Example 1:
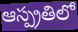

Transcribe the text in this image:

ఆస్ప్రతిలో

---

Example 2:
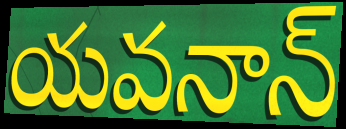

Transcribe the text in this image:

యవనాన్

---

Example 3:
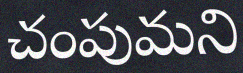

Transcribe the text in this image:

చంపుమని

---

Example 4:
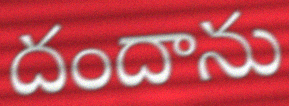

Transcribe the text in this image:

దందాను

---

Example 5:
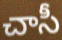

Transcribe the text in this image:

చాసీ